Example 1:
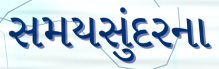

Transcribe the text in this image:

સમયસુંદરના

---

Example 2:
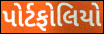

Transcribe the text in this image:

પોર્ટફોલિયો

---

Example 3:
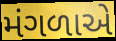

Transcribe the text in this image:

મંગળાએ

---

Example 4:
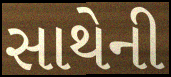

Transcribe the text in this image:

સાથેની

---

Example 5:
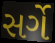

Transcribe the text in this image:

સર્ગે